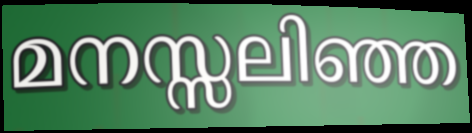
മനസ്സലിഞ്ഞ